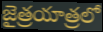
జైత్రయాత్రలో